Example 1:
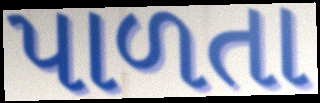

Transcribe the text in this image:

પાળતા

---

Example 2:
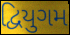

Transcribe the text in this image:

દ્વિયુગમ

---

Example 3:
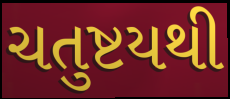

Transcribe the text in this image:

ચતુષ્ટયથી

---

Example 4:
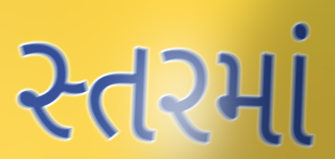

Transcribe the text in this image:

સ્તરમાં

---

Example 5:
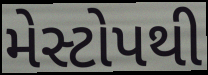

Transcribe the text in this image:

મેસ્ટોપથી